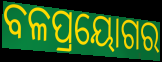
ବଳପ୍ରୟୋଗର